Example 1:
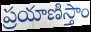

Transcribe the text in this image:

ప్రయాణిస్తాం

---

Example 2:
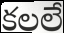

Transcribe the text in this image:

కలలే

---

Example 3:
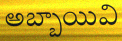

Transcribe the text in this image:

అబ్బాయివి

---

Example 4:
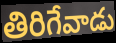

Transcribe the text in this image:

తిరిగేవాడు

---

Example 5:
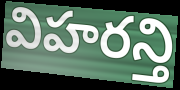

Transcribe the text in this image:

విహరన్తి